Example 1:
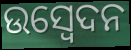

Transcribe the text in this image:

ଉସ୍ୱେଦନ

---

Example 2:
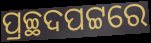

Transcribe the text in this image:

ପ୍ରଚ୍ଛଦପଟ୍ଟରେ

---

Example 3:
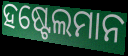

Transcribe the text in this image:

ହଷ୍ଟେଲମାନ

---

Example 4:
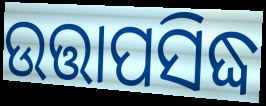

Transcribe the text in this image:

ଉତ୍ତାପସିଦ୍ଧ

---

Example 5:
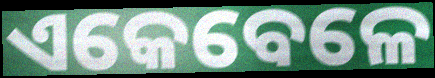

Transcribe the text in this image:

ଏକେବେଳେ